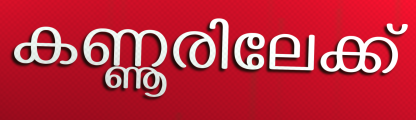
കണ്ണൂരിലേക്ക്